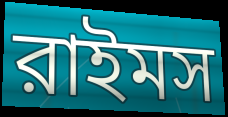
রাইমস